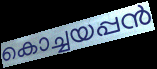
കൊച്ചയപ്പൻ